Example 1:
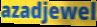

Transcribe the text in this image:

azadjewel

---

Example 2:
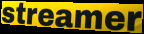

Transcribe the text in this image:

streamer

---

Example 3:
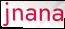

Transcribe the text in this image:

jnana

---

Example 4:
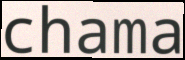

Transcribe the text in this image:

chama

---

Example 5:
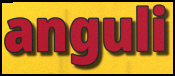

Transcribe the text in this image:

anguli